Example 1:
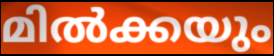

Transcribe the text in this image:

മിൽക്കയും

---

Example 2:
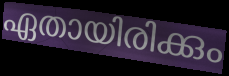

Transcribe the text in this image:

ഏതായിരിക്കും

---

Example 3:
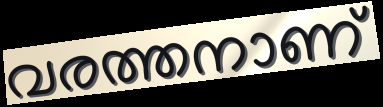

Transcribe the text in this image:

വരത്തനാണ്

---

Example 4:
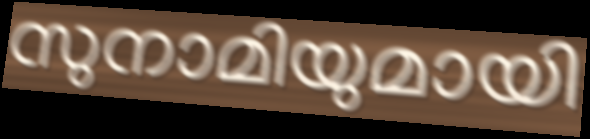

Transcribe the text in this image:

സുനാമിയുമായി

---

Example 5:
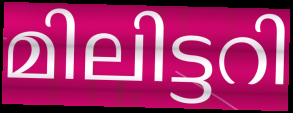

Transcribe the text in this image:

മിലിട്ടറി